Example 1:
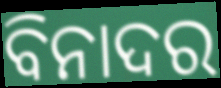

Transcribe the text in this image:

ବିନାଦର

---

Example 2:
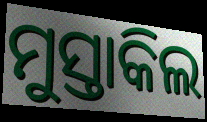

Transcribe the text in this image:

ମୁସ୍ତାକିଲ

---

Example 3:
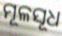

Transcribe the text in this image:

ମୂଳସୂଧ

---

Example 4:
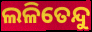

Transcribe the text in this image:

ଲଳିତେନ୍ଦୁ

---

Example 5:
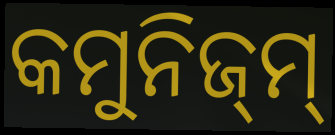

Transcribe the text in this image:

କମୁନିଜ୍‌ମ୍